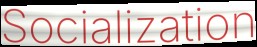
Socialization